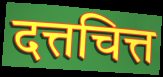
दत्तचित्त